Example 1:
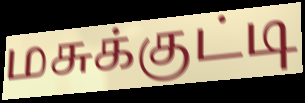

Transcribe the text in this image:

மசுக்குட்டி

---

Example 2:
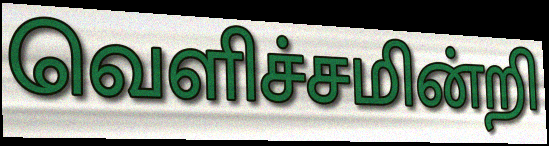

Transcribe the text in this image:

வெளிச்சமின்றி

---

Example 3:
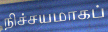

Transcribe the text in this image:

நிச்சயமாகப்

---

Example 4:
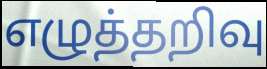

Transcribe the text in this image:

எழுத்தறிவு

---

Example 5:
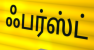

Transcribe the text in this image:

ஃபர்ஸ்ட்